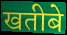
खतीबे